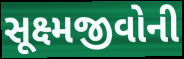
સૂક્ષ્મજીવોની